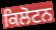
ਕਿਲੋਟਨ